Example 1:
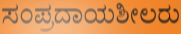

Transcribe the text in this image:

ಸಂಪ್ರದಾಯಶೀಲರು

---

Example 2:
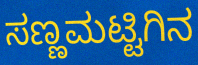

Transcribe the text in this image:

ಸಣ್ಣಮಟ್ಟಿಗಿನ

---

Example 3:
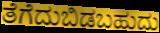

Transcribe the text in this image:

ತೆಗೆದುಬಿಡಬಹುದು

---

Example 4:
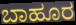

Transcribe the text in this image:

ಬಾಹೂರ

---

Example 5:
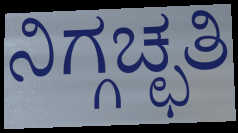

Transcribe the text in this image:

ನಿಗ್ಗಚ್ಛತಿ